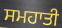
ਸਮਹਾਤੀ